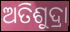
ଅତିଶୁଦ୍ରା